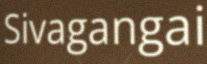
Sivagangai